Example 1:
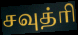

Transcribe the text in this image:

சவுத்ரி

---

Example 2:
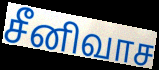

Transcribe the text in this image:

சீனிவாச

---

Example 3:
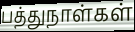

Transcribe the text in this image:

பத்துநாள்கள்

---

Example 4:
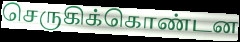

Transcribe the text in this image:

செருகிக்கொண்டன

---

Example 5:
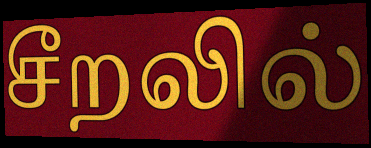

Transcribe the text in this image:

சீறலில்